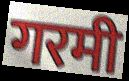
गरमी